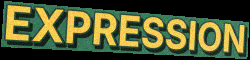
EXPRESSION